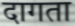
दागता